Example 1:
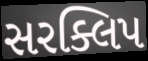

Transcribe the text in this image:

સરક્લિપ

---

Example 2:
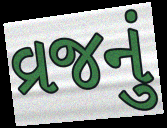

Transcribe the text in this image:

વ્રજનું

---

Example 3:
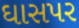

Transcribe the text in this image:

ઘાસપર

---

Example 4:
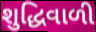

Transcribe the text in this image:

શુદ્ધિવાળી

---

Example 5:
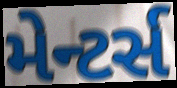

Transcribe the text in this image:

મેન્ટર્સ